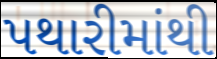
પથારીમાંથી